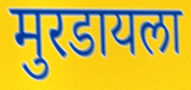
मुरडायला